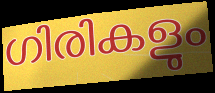
ഗിരികളും